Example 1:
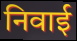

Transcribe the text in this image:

निवाई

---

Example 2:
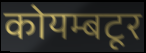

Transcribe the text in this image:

कोयम्‍बटूर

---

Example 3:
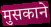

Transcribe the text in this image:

मुसकाने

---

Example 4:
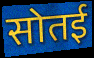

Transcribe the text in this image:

सोतई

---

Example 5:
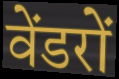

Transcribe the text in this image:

वेंडरों